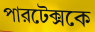
পারটেক্সকে